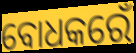
ବୋଧକରେଁ